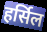
हर्सिल